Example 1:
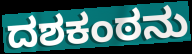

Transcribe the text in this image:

ದಶಕಂಠನು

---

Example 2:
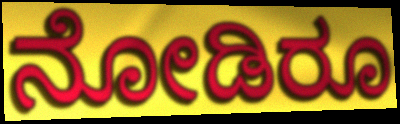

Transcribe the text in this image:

ನೋಡಿರೂ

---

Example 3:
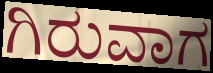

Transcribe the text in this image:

ಗಿರುವಾಗ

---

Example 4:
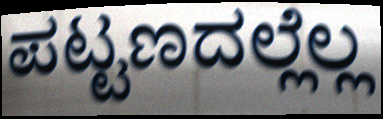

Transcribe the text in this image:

ಪಟ್ಟಣದಲ್ಲೆಲ್ಲ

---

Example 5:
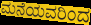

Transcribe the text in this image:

ಮನೆಯವರಿಂದ